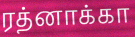
ரத்னாக்கா